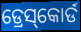
ଡ୍ରେସ୍‌କୋର୍ଡ